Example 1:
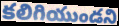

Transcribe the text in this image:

కలిగియుండని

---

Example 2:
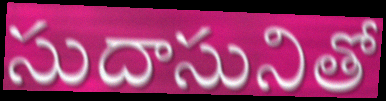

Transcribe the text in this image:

సుదాసునితో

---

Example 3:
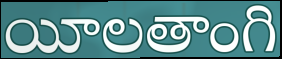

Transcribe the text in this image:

యీలతాంగి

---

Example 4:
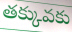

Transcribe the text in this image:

తక్కువకు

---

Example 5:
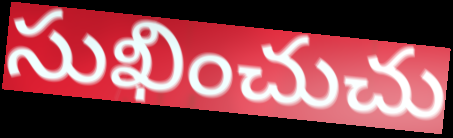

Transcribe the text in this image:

సుఖించుచు